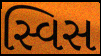
સ્વિસ